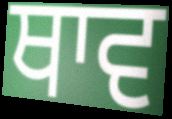
ਥਾਵ